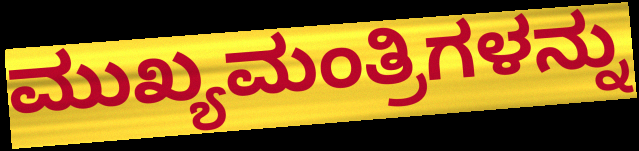
ಮುಖ್ಯಮಂತ್ರಿಗಳನ್ನು